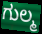
ಗುಲ್ಮ